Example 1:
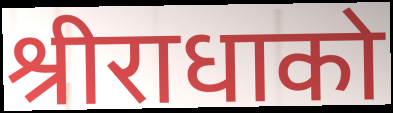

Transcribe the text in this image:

श्रीराधाको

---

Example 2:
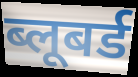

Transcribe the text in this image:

ब्लूबर्ड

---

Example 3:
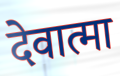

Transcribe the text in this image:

देवात्मा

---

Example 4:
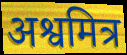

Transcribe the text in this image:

अश्वमित्र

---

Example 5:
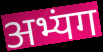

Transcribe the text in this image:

अभ्यंग